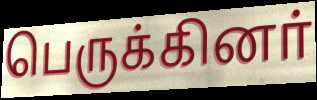
பெருக்கினர்